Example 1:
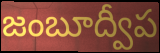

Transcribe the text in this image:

జంబూద్వీప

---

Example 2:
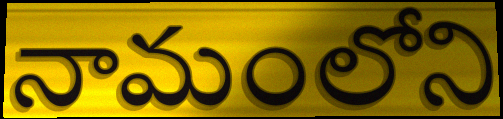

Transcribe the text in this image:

నామంలోని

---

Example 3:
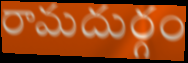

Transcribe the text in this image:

రామదుర్గం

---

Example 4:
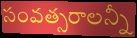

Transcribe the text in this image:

సంవత్సరాలన్నీ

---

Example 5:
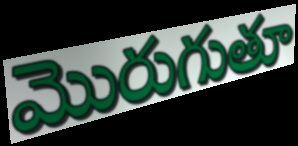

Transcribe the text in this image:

మొరుగుతూ